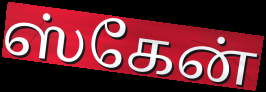
ஸ்கேன்